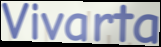
Vivarta